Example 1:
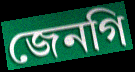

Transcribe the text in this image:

জেনগি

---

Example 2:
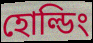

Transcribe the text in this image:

হোল্ডিং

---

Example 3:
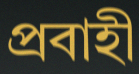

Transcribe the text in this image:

প্রবাহী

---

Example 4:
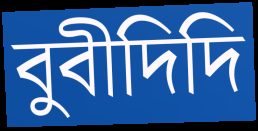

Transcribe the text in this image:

বুবীদিদি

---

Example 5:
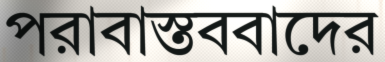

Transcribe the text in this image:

পরাবাস্তববাদের